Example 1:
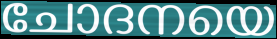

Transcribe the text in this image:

ചോദനയെ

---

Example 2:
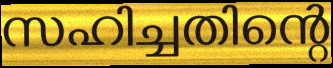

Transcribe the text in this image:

സഹിച്ചതിന്റെ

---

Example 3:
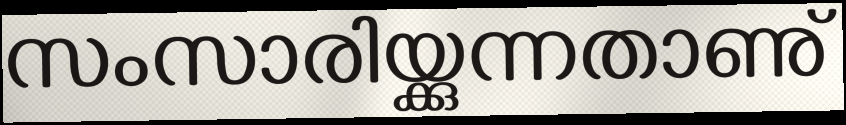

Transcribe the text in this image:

സംസാരിയ്ക്കുന്നതാണു്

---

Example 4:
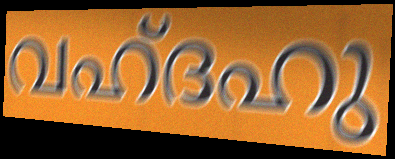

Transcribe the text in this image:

വഹ്ദഹു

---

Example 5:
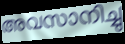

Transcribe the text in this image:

അവസാനിച്ചു